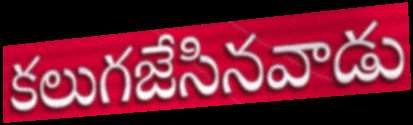
కలుగజేసినవాడు